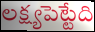
లక్ష్యపెట్టేది